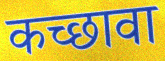
कच्छावा